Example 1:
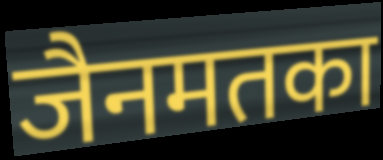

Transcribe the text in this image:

जैनमतका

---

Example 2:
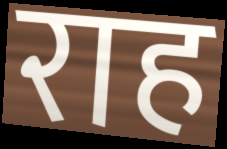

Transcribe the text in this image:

राह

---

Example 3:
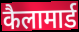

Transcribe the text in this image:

कैलामार्ड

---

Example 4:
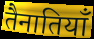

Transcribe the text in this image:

तैनातियाँ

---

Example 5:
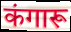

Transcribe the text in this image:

कंगारू